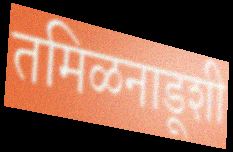
तमिळनाडूशी